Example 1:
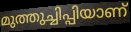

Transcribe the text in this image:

മുത്തുച്ചിപ്പിയാണ്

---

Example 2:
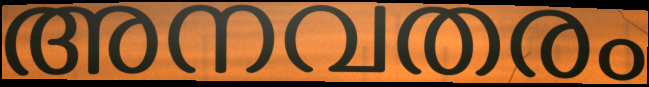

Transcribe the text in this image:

അനവതരം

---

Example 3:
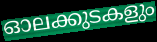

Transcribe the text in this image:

ഓലക്കുടകളും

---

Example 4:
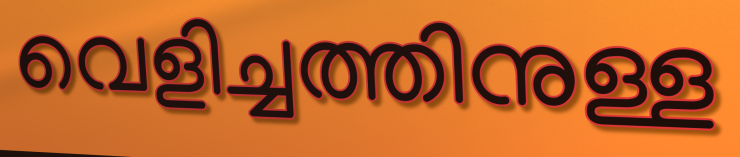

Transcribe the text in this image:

വെളിച്ചത്തിനുള്ള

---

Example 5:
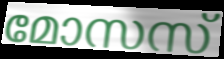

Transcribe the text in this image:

മോസസ്